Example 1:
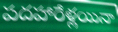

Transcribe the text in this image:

పదహారేళ్లయినా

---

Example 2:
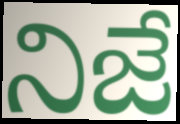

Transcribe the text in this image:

నిజే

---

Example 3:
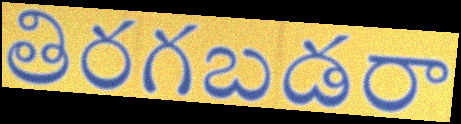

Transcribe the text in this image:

తిరగబడరా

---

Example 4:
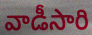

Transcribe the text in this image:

వాడీసారి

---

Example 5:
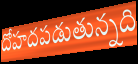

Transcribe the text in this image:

దోహదపడుతున్నది